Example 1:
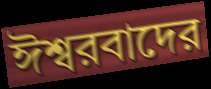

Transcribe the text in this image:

ঈশ্বরবাদের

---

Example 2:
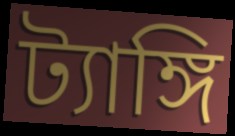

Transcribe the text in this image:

ট্যাঙ্গি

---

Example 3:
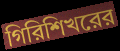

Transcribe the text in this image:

গিরিশিখরের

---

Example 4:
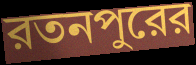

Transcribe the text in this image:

রতনপুরের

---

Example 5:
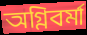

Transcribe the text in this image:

অগ্নিবর্মা